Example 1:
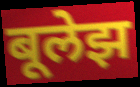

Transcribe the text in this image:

बूलेझ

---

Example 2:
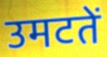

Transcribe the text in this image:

उमटतें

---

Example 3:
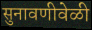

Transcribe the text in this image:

सुनावणीवेळी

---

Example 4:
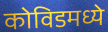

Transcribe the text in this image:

कोविडमध्ये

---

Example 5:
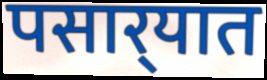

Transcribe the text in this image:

पसार्‍यात